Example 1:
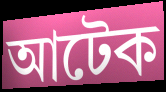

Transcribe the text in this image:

আটেক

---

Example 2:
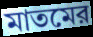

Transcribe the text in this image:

মাতমের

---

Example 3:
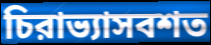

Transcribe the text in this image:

চিরাভ্যাসবশত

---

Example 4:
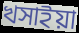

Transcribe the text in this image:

খসাইয়া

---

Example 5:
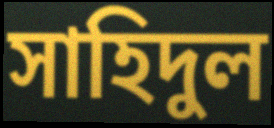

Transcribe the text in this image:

সাহিদুল